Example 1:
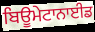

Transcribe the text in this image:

ਬਿਊਮੇਟਾਨਾਈਡ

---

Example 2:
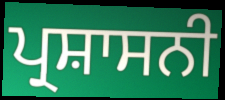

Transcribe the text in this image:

ਪ੍ਰਸ਼ਾਸਨੀ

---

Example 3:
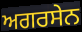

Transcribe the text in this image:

ਅਗਰਸੇਨ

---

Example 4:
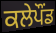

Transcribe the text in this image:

ਕਲੇਪੌਂਡ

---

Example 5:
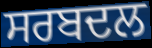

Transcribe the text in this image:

ਸਰਬਦਲ